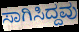
ಸಾಗಿಸಿದ್ದವು